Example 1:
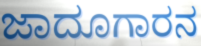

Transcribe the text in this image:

ಜಾದೂಗಾರನ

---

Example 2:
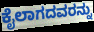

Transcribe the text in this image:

ಕೈಲಾಗದವರನ್ನು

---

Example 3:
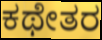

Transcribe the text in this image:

ಕಥೇತರ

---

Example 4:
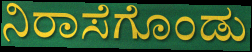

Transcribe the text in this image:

ನಿರಾಸೆಗೊಂಡು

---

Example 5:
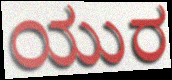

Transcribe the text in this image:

ಯುರ